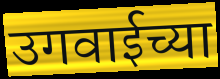
उगवाईच्या